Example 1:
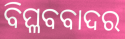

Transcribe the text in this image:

ବିପ୍ଳବବାଦର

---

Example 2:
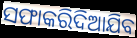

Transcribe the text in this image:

ସଫାକରିଦିଆଯିବ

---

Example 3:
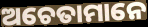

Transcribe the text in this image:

ଅଚେତାମାନେ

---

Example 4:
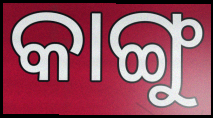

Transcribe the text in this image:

କାଙ୍ଗୁ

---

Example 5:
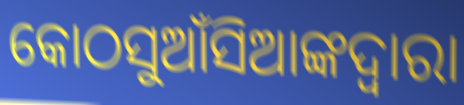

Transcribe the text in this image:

କୋଠସୁଆଁସିଆଙ୍କଦ୍ବାରା